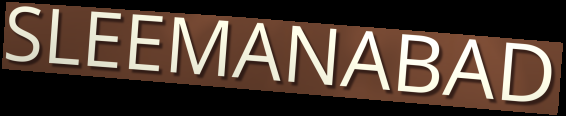
SLEEMANABAD